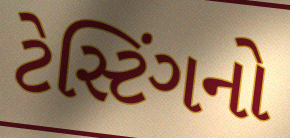
ટેસ્ટિંગનો